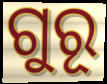
ଗୁରୂ